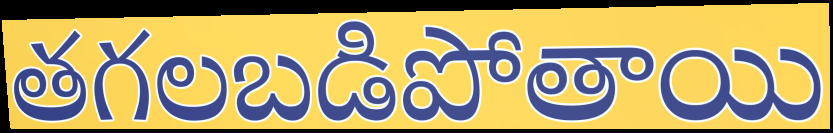
తగలబడిపోతాయి